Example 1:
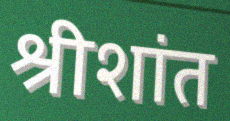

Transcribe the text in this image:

श्रीशांत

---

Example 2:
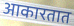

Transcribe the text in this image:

आकारतात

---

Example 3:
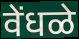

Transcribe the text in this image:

वेंधळे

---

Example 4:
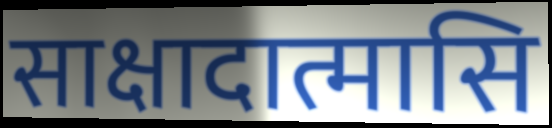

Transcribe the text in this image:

साक्षादात्मासि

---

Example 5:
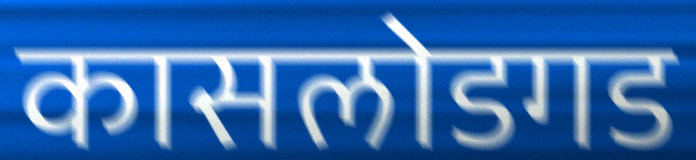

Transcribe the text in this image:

कासलोडगड